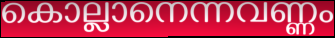
കൊല്ലാനെന്നവണ്ണം